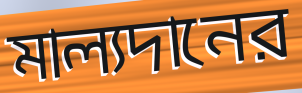
মাল্যদানের